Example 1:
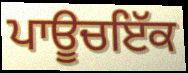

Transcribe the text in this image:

ਪਾਊਚਇੱਕ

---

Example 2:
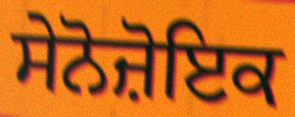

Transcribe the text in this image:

ਸੇਨੋਜ਼ੋਇਕ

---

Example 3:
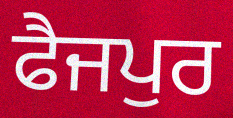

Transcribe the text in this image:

ਫੈਜਪੁਰ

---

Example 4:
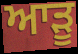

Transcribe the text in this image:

ਆੜੂ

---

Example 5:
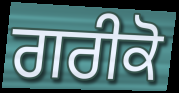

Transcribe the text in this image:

ਗਰੀਕੋ